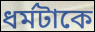
ধর্মটাকে